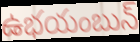
ఉభయంబున్